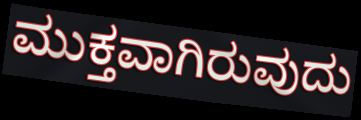
ಮುಕ್ತವಾಗಿರುವುದು